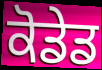
ਕੋਡੇਡ